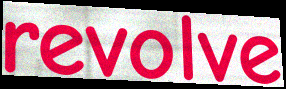
revolve